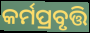
କର୍ମପ୍ରବୃତ୍ତି